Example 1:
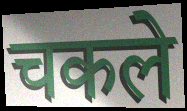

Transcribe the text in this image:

चकले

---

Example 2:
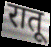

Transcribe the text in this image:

रातू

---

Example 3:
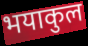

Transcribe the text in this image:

भयाकुल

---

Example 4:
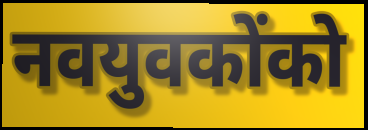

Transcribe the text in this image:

नवयुवकोंको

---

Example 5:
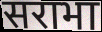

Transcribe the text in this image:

सराभा